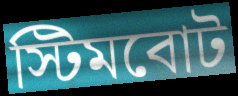
স্টিমবোট